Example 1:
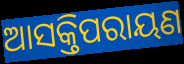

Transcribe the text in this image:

ଆସକ୍ତିପରାୟଣ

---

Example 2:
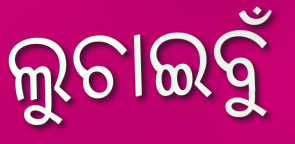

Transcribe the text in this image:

ଲୁଚାଇବୁଁ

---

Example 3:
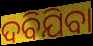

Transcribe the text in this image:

ଦବିଯିବା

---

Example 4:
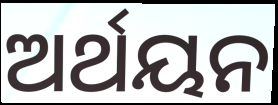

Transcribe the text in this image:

ଅର୍ଥୟନ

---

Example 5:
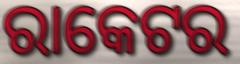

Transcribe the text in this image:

ରାକେଟର